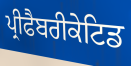
ਪ੍ਰੀਫੈਬਰੀਕੇਟਿਡ